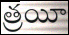
త్రయీ